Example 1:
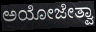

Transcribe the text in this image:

ಅಯೋಜೇತ್ವಾ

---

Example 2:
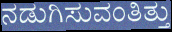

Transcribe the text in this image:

ನಡುಗಿಸುವಂತಿತ್ತು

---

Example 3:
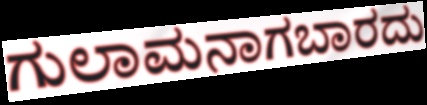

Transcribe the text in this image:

ಗುಲಾಮನಾಗಬಾರದು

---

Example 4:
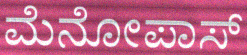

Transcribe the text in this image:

ಮೆನೋಪಾಸ್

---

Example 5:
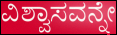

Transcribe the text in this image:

ವಿಶ್ವಾಸವನ್ನೇ